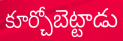
కూర్చోబెట్టాడు